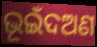
ଭୂଇଁଦଅଣ